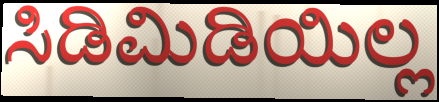
ಸಿಡಿಮಿಡಿಯಿಲ್ಲ